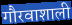
गौरवाशाली